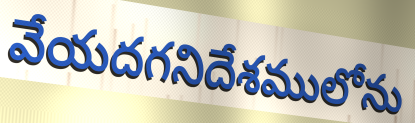
వేయదగనిదేశములోను